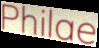
Philae